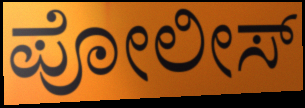
ಪೋಲೀಸ್